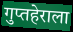
गुप्तहेराला